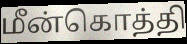
மீன்கொத்தி